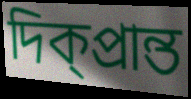
দিক্‌প্রান্ত